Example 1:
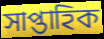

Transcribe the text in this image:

সাপ্তাহিক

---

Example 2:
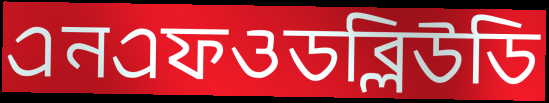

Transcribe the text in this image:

এনএফওডব্লিউডি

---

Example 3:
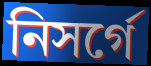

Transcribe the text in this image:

নিসর্গে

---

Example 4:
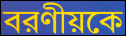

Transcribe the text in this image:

বরণীয়কে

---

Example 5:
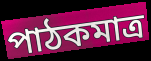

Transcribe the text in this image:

পাঠকমাত্র